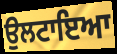
ਉਲਟਾਇਆ